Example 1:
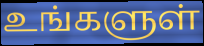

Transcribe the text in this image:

உங்களுள்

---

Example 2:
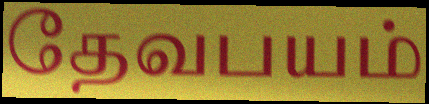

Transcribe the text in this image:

தேவபயம்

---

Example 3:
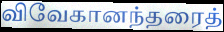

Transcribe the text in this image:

விவேகானந்தரைத்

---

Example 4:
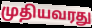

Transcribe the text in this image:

முதியவரது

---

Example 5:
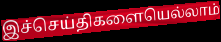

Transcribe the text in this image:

இச்செய்திகளையெல்லாம்